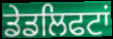
ਡੇਡਲਿਫਟਾਂ